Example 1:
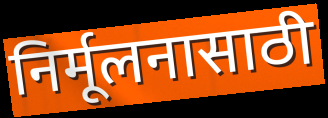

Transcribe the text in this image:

निर्मूलनासाठी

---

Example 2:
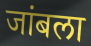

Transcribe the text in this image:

जांबला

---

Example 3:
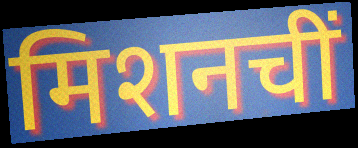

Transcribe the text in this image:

मिशनचीं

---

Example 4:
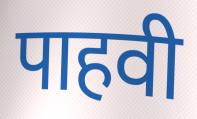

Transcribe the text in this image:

पाहवी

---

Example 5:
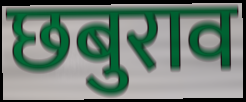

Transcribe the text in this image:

छबुराव